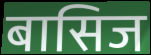
बासिज